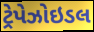
ટ્રેપેઝોઇડલ